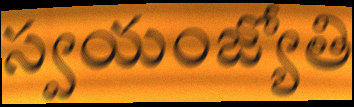
స్వయంజ్యోతి